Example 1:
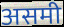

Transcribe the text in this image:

असमी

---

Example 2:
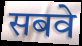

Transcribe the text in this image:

सबवे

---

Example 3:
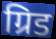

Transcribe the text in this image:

ग्रिड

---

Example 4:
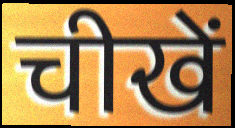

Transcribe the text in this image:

चीखें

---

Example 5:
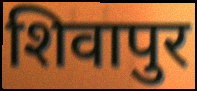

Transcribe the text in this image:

शिवापुर